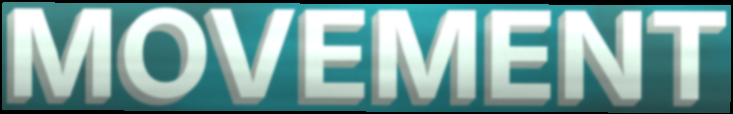
MOVEMENT